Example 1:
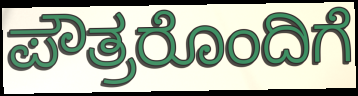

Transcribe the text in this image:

ಪೌತ್ರರೊಂದಿಗೆ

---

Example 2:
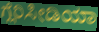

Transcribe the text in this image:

ಗ್ಲೆರಿಸೀಡಿಯಾ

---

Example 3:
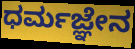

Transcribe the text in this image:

ಧರ್ಮಜ್ಞೇನ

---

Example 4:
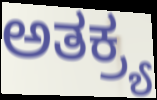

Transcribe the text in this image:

ಅತಕ್ರ್ಯ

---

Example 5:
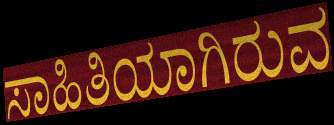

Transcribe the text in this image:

ಸಾಹಿತಿಯಾಗಿರುವ